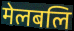
मेलबलि